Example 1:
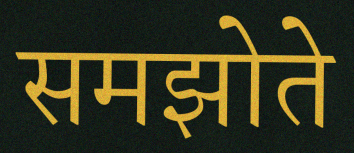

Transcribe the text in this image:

समझोते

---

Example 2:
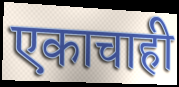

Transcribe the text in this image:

एकाचाही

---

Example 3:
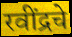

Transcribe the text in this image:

रवींद्रचे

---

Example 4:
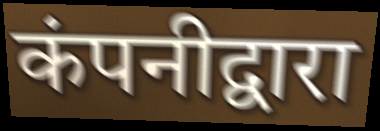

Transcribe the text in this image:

कंपनीद्वारा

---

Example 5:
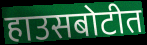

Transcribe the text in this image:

हाउसबोटीत